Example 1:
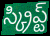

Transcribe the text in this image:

స్క్రిప్ట్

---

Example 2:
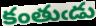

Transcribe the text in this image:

కంతుఁడు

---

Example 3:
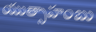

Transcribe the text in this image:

యుత్సాహంబు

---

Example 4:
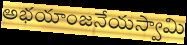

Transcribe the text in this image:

అభయాంజనేయస్వామి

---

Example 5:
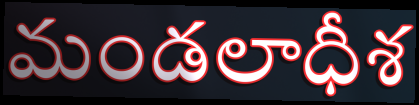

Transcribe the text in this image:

మండలాధీశ